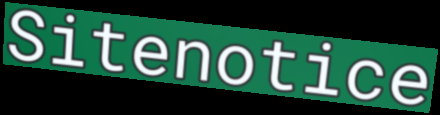
Sitenotice